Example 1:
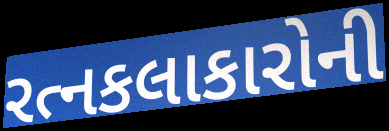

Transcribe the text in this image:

રત્નકલાકારોની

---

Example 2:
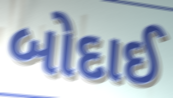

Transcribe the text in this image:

બોદાઈ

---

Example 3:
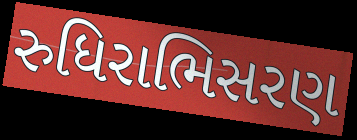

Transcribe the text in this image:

રુધિરાભિસરણ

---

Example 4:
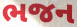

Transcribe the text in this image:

ભજન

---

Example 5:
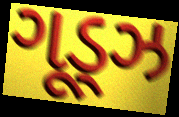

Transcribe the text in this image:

ગૂડ્ઝ